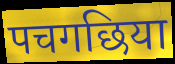
पचगछिया